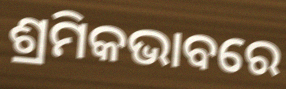
ଶ୍ରମିକଭାବରେ